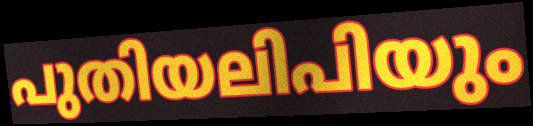
പുതിയലിപിയും